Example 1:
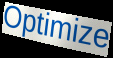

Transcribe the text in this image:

Optimize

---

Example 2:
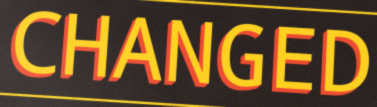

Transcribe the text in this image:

CHANGED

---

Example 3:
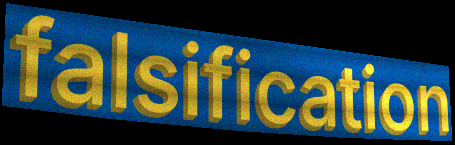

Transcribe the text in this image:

falsification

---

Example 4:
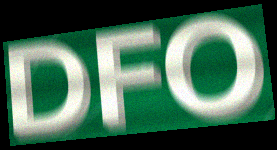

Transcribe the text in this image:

DFO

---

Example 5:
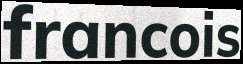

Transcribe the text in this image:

francois